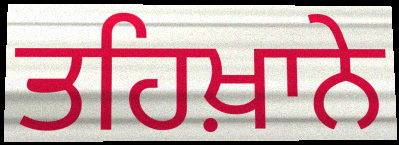
ਤਹਿਖ਼ਾਨੇ